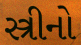
સ્ત્રીનો